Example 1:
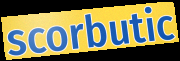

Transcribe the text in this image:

scorbutic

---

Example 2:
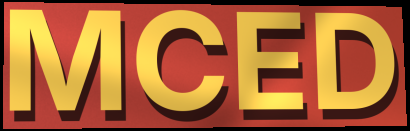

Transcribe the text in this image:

MCED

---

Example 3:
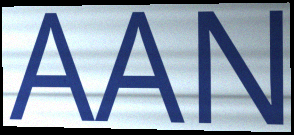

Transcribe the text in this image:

AAN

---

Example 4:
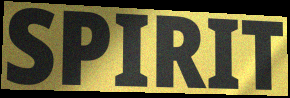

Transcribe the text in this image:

SPIRIT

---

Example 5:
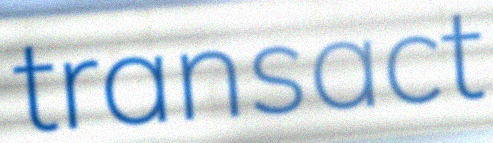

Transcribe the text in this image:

transact